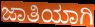
ಜಾತಿಯಾಗಿ